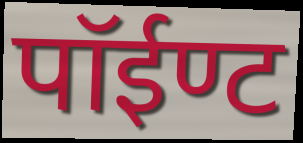
पॉईण्ट